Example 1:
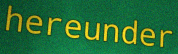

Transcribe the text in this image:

hereunder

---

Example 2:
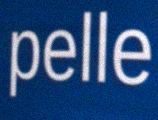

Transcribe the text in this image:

pelle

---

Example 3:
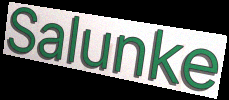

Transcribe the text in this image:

Salunke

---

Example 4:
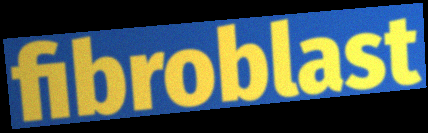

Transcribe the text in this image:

fibroblast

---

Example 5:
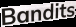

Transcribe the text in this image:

Bandits